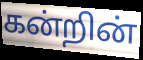
கன்றின்